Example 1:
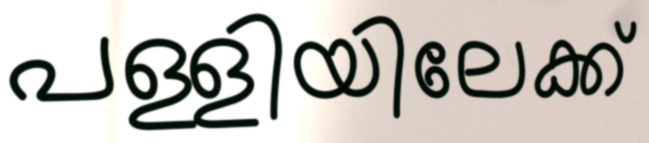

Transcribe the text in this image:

പള്ളിയിലേക്ക്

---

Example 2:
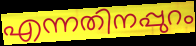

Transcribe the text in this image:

എന്നതിനപ്പുറം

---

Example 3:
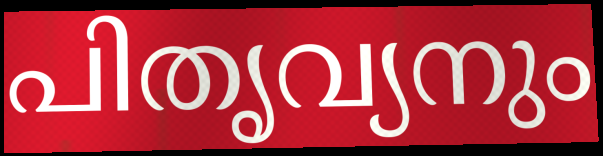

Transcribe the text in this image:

പിതൃവ്യനും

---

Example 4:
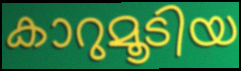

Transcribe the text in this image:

കാറുമൂടിയ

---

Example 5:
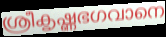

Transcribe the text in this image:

ശ്രീകൃഷ്ണഭഗവാനെ